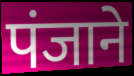
पंजाने